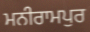
ਮਨੀਰਾਮਪੁਰ